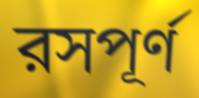
রসপূর্ণ